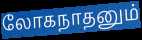
லோகநாதனும்